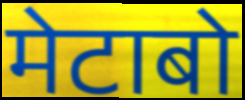
मेटाबो